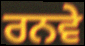
ਰਨਵੇ